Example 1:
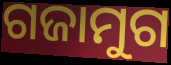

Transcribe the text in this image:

ଗଜାମୁଗ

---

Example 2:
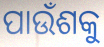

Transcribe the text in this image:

ପାଉଁଶକୁ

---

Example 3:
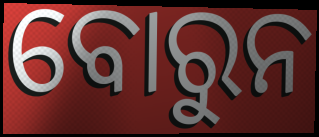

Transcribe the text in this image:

ବୋରୁନ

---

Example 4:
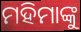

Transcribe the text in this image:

ମହିମାଙ୍କୁ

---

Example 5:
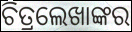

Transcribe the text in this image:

ଚିତ୍ରଲେଖାଙ୍କର